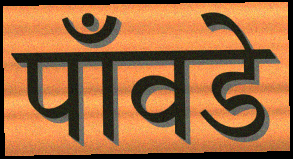
पाँवडे